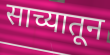
साच्यातून